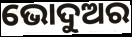
ଭୋଦୁଅର